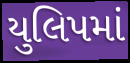
યુલિપમાં